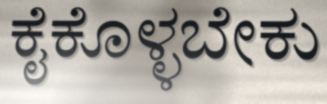
ಕೈಕೊಳ್ಳಬೇಕು